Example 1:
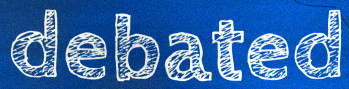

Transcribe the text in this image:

debated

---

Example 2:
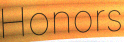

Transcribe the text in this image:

Honors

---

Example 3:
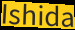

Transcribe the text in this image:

Ishida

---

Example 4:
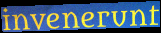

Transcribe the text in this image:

invenerunt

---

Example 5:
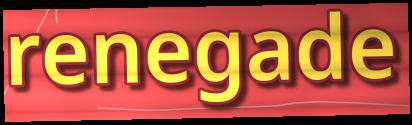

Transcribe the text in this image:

renegade